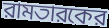
রামতারকের